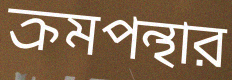
ক্রমপন্থার